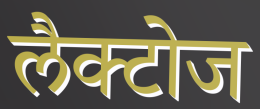
लैक्टोज